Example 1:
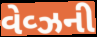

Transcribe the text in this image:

વેવ્ઝની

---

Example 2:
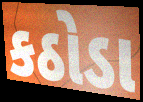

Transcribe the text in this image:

કઠોડા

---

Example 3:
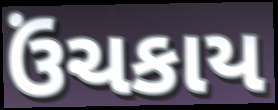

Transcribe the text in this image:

ઉંચકાય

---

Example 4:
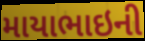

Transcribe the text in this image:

માયાભાઇની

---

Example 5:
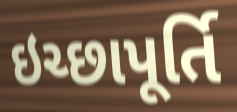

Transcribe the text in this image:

ઇચ્છાપૂર્તિ